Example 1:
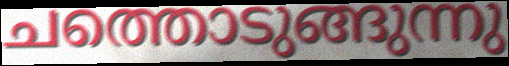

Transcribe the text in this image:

ചത്തൊടുങ്ങുന്നു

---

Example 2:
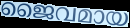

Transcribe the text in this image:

ജൈവമായ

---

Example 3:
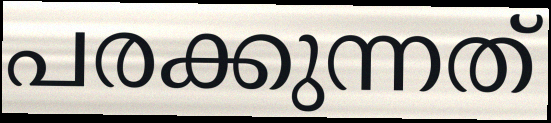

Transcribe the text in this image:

പരക്കുന്നത്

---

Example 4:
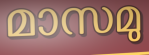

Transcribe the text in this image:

മാസമു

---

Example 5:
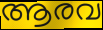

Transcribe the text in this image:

ആരവ